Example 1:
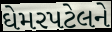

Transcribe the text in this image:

ઘેમરપટેલને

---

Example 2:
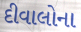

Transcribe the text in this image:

દીવાલોના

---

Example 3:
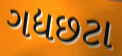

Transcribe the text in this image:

ગદ્યછટા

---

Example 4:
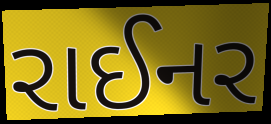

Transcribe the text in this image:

રાઈનર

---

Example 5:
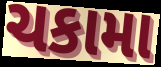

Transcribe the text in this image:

ચકામા